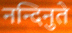
नन्दिनुते